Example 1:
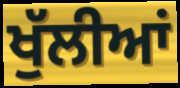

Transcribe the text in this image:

ਖੁੱਲੀਆਂ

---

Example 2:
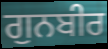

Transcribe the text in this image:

ਗੁਨਬੀਰ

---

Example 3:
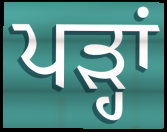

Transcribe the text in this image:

ਪੜ੍ਹਾਂ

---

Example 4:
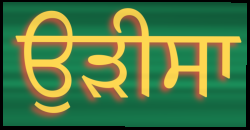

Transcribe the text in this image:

ਉਡ਼ੀਸਾ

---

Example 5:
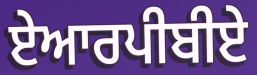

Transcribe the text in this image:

ਏਆਰਪੀਬੀਏ